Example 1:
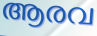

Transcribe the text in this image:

ആരവ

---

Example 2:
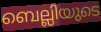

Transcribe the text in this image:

ബെല്ലിയുടെ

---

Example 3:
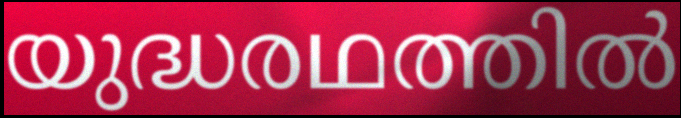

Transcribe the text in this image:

യുദ്ധരഥത്തിൽ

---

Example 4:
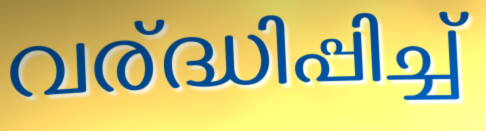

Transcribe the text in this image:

വര്ദ്ധിപ്പിച്ച്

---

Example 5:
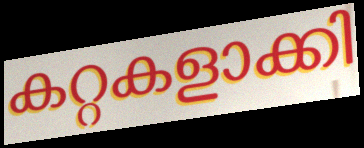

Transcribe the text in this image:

കറ്റകളാക്കി